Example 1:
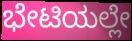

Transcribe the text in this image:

ಭೇಟಿಯಲ್ಲೇ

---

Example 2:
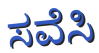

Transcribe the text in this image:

ಸವೆಸಿ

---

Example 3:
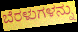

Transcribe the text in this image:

ಬೆರಳುಗಳನ್ನು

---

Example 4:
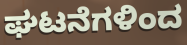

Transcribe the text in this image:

ಘಟನೆಗಳಿಂದ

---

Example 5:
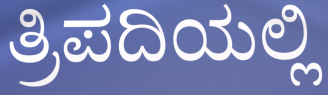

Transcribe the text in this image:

ತ್ರಿಪದಿಯಲ್ಲಿ